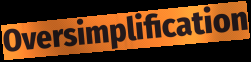
Oversimplification